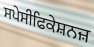
ਸਪੇਸੀਫਿਕੇਸ਼ਨਜ਼